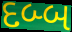
દબ્બ